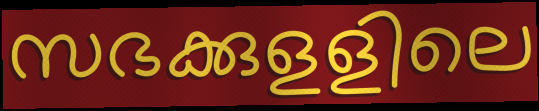
സഭക്കുളളിലെ